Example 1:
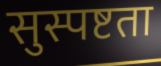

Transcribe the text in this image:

सुस्पष्टता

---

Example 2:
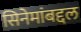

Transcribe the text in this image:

सिनेमांबद्दल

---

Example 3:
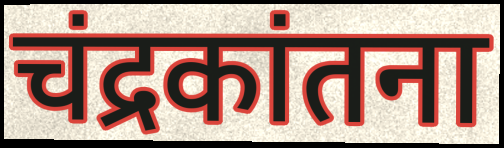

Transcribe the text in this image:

चंद्रकांतना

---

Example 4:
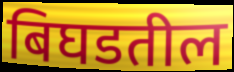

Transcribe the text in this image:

बिघडतील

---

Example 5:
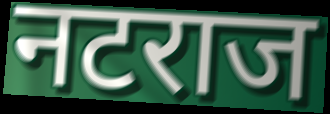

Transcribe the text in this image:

नटराज